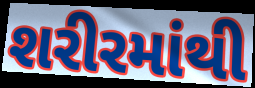
શરીરમાંથી